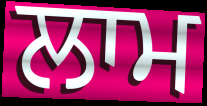
ਲਾਮ